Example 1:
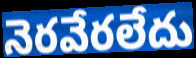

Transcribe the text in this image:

నెరవేరలేదు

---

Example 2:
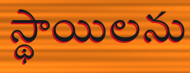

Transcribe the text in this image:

స్థాయిలను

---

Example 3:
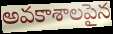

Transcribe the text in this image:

అవకాశాలపైన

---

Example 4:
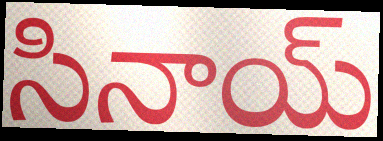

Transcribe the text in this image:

సినాయ్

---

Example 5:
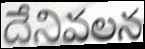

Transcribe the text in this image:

దేనివలన